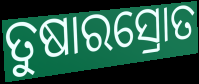
ତୁଷାରସ୍ରୋତ